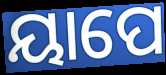
ୟାପେ